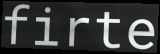
firte